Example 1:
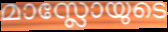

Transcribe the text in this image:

മാസ്ലോയുടെ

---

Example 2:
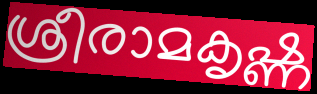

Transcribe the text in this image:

ശ്രീരാമകൃഷ്ണ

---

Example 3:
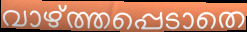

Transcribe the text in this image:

വാഴ്ത്തപ്പെടാതെ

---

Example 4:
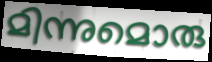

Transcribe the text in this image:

മിന്നുമൊരു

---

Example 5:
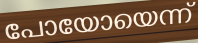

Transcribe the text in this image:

പോയോയെന്ന്